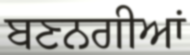
ਬਣਨਗੀਆਂ